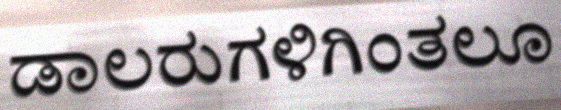
ಡಾಲರುಗಳಿಗಿಂತಲೂ